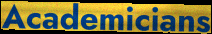
Academicians